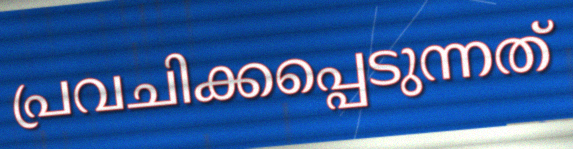
പ്രവചിക്കപ്പെടുന്നത്